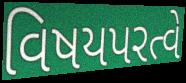
વિષયપરત્વે